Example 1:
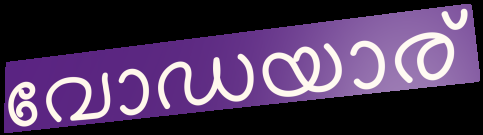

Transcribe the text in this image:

വോഡയാര്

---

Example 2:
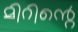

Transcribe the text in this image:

മിറിന്റെ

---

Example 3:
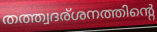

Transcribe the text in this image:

തത്ത്വദര്ശനത്തിന്റെ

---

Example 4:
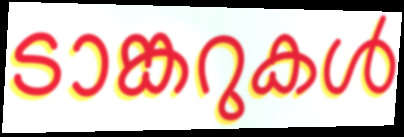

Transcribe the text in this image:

ടാങ്കറുകൾ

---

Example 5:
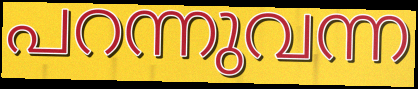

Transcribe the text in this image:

പറന്നുവന്ന